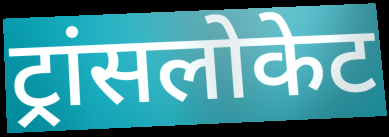
ट्रांसलोकेट